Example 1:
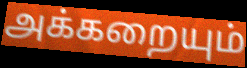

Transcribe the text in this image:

அக்கறையும்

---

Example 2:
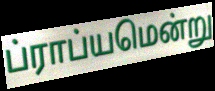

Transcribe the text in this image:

ப்ராப்யமென்று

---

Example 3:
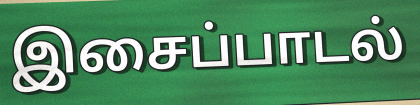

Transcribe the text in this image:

இசைப்பாடல்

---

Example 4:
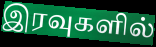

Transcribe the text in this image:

இரவுகளில்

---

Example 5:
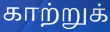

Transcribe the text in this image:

காற்றுக்